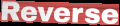
Reverse